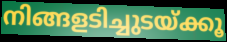
നിങ്ങളടിച്ചുടയ്ക്കൂ